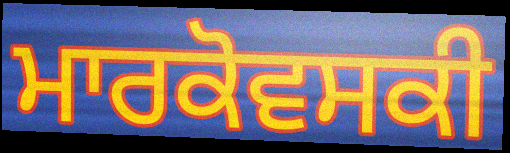
ਮਾਰਕੋਵਸਕੀ